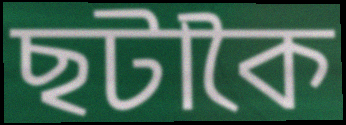
ছটাকৈ